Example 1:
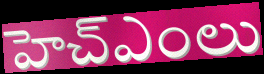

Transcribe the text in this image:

హెచ్ఎంలు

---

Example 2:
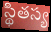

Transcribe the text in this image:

స్థితస్య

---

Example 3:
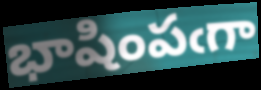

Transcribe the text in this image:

భాషింపఁగా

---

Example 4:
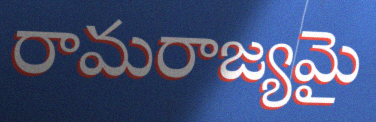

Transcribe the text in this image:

రామరాజ్యమై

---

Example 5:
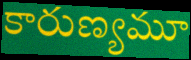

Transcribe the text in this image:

కారుణ్యమూ